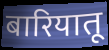
बारियातू